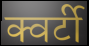
क्वर्टी